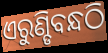
ଏରୁଣ୍ଡିବନ୍ଧଠି